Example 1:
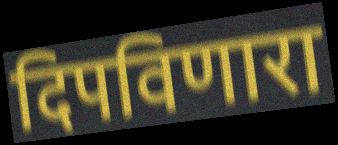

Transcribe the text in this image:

दिपविणारा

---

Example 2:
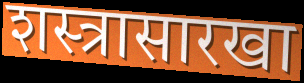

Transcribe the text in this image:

शस्त्रासारखा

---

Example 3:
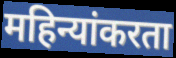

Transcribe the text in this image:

महिन्यांकरता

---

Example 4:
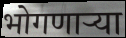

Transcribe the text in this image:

भोगणाऱ्या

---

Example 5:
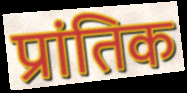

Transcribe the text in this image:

प्रांतिक